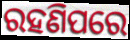
ରହଣିପରେ